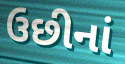
ઉછીનાં